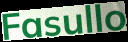
Fasullo